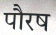
पौरष